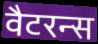
वैटरन्स